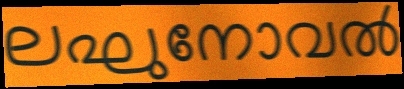
ലഘുനോവൽ